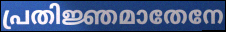
പ്രതിജ്ഞമാതേനേ